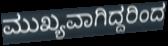
ಮುಖ್ಯವಾಗಿದ್ದರಿಂದ